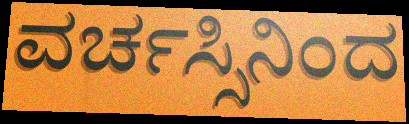
ವರ್ಚಸ್ಸಿನಿಂದ